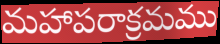
మహాపరాక్రమము